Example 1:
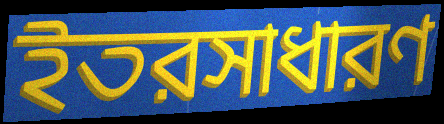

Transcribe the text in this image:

ইতরসাধারণ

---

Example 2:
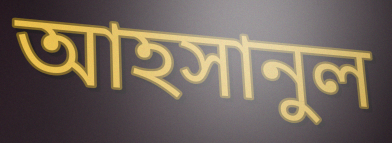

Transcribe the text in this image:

আহসানুল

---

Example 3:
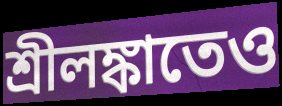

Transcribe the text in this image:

শ্রীলঙ্কাতেও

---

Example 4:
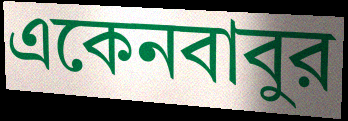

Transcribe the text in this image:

একেনবাবুর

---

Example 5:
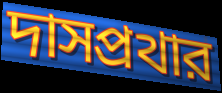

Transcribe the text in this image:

দাসপ্রথার